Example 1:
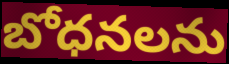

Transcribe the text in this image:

బోధనలను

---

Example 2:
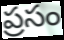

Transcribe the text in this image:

ప్రసం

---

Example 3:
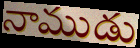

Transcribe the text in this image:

నాముడు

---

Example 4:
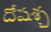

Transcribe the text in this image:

దోషశ్చ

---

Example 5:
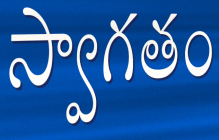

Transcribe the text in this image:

స్వాగతం